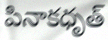
పినాకధృత్